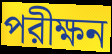
পরীক্ষন